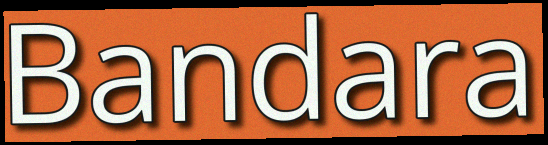
Bandara